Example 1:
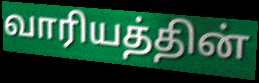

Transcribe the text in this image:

வாரியத்தின்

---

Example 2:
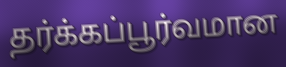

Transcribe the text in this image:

தர்க்கப்பூர்வமான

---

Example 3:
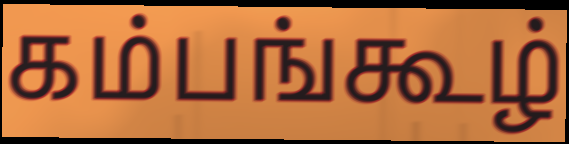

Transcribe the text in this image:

கம்பங்கூழ்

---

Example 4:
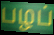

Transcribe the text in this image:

பழப்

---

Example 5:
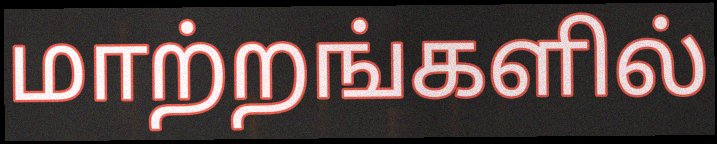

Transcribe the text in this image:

மாற்றங்களில்